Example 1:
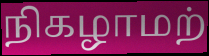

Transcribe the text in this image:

நிகழாமற்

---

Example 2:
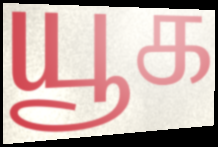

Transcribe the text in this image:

யூக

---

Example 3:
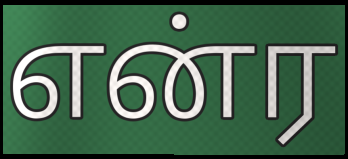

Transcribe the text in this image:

என்ர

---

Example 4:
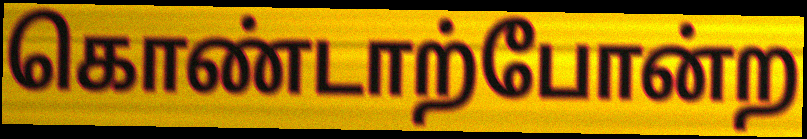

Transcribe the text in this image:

கொண்டாற்போன்ற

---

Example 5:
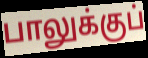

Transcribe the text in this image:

பாலுக்குப்